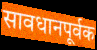
सावधानपूर्वक